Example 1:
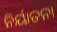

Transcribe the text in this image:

ନିର୍ୟାତନା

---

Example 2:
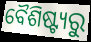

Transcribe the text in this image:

ବୈଶିଷ୍ଟ୍ୟରୁ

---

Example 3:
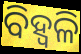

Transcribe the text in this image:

ବିହ୍ୱଳି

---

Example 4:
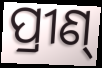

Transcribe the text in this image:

ପ୍ରୀଣ୍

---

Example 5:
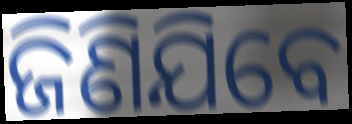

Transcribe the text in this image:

ଜିଣିଯିବେ